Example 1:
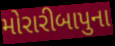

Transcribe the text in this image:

મોરારીબાપુના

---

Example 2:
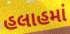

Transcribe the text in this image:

હલાહમાં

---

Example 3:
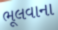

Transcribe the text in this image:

ભૂલવાના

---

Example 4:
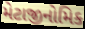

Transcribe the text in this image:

મેટાજીનોમિક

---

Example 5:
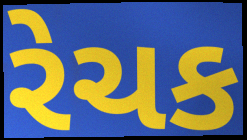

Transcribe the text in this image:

રેચક